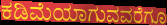
ಕಡಿಮೆಯಾಗುವವರೆಗೂ